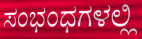
ಸಂಭಂಧಗಳಲ್ಲಿ